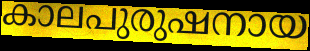
കാലപുരുഷനായ